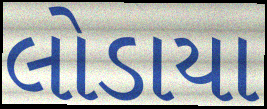
લોડાયા